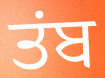
ਤਂਬ